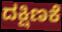
ದಕ್ಷಿಣಕೆ